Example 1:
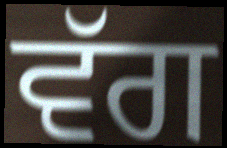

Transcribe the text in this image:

ਵੱਗ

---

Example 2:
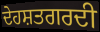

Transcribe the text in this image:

ਦੇਹਸ਼ਤਗਰਦੀ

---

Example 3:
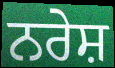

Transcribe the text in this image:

ਨਰੇਸ਼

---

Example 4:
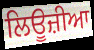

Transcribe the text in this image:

ਲਿਊਜ਼ੀਆ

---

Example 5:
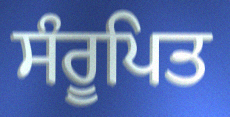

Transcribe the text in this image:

ਸੰਰੂਪਿਤ